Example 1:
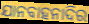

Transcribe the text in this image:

ଯାନବାହନାଦିର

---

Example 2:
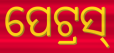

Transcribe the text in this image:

ପେଟ୍ରସ୍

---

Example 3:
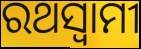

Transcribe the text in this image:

ରଥସ୍ୱାମୀ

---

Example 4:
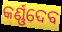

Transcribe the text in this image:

କର୍ଣ୍ଣଦେବ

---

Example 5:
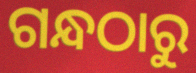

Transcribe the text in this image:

ଗନ୍ଧଠାରୁ